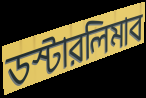
ডস্টারলিমাব